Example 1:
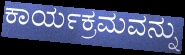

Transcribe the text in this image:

ಕಾರ್ಯಕ್ರಮವನ್ನು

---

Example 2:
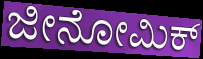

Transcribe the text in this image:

ಜೀನೋಮಿಕ್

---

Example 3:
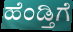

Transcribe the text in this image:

ಹೆಂಡ್ತಿಗೆ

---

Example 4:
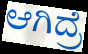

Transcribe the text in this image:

ಆಗಿದ್ರೆ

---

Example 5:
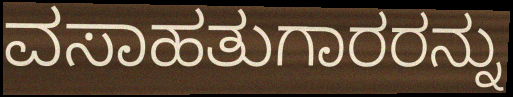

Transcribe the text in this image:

ವಸಾಹತುಗಾರರನ್ನು